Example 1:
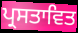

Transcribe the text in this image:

ਪ੍ਰਸਤਾਵਿਤ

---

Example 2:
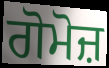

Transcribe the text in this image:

ਗੋਮੋਜ਼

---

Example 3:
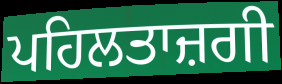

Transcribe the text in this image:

ਪਹਿਲਤਾਜ਼ਗੀ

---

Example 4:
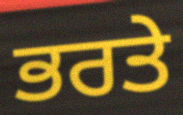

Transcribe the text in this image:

ਭਰਤੇ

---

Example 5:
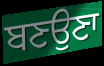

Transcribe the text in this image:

ਬਣਉਣਾ